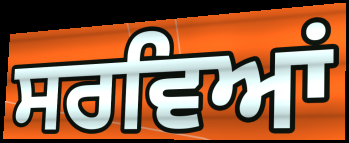
ਸਰਵਿਆਂ